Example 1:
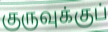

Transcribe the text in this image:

குருவுக்குப்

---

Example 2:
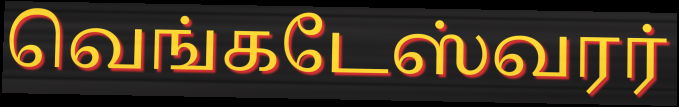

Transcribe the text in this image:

வெங்கடேஸ்வரர்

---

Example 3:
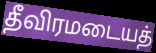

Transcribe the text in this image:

தீவிரமடையத்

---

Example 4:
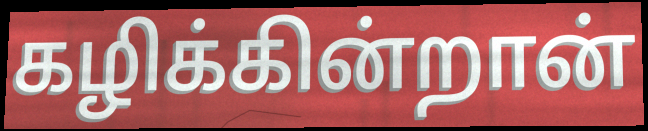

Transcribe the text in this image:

கழிக்கின்றான்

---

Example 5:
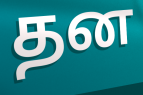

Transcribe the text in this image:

தன